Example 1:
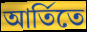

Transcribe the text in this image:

আর্তিতে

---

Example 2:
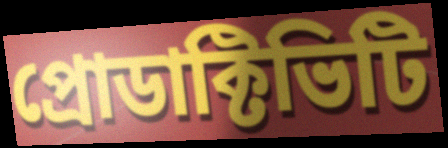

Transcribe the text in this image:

প্রোডাক্টিভিটি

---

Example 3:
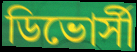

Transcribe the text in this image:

ডিভোর্সী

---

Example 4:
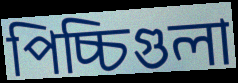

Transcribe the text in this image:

পিচ্চিগুলা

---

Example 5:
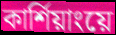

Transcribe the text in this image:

কার্শিয়াংয়ে